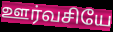
ஊர்வசியே